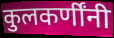
कुलकर्णींनी